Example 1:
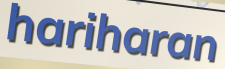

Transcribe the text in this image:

hariharan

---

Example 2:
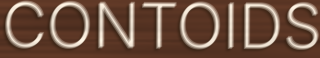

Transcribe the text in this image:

CONTOIDS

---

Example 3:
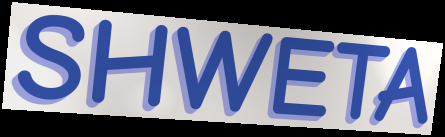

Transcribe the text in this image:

SHWETA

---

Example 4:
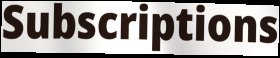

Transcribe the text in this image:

Subscriptions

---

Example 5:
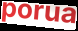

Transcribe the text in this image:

porua